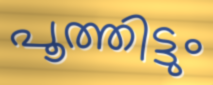
പൂത്തിട്ടും